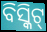
ବିସ୍କିଟ୍